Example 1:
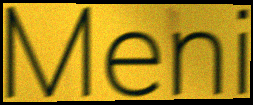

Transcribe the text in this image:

Meni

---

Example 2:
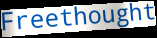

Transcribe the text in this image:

Freethought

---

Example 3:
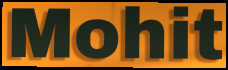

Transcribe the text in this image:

Mohit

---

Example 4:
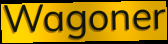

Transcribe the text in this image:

Wagoner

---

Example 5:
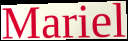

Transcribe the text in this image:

Mariel